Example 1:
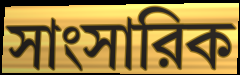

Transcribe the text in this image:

সাংসারিক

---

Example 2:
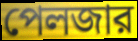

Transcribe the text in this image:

পেলজার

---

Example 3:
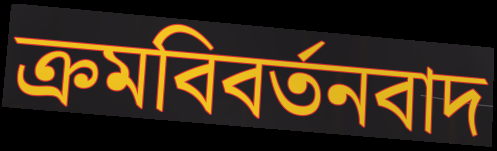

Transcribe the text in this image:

ক্রমবিবর্তনবাদ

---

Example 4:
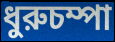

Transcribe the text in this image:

ধুরুচম্পা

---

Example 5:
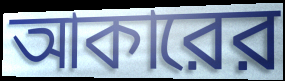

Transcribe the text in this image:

আকারের